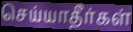
செய்யாதீர்கள்